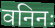
वनिनः